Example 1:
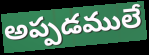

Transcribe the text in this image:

అప్పడములే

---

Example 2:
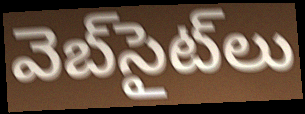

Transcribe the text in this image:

వెబ్‌సైట్‌లు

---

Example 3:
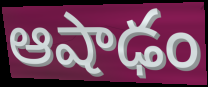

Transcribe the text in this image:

ఆషాఢం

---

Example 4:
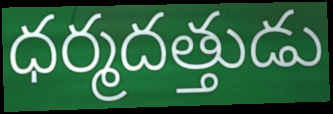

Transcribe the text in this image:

ధర్మదత్తుడు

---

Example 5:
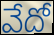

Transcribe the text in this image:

వేదో